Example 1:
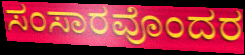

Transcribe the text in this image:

ಸಂಸಾರವೊಂದರ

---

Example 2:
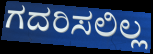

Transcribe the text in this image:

ಗದರಿಸಲಿಲ್ಲ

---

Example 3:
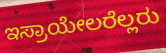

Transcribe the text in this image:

ಇಸ್ರಾಯೇಲರೆಲ್ಲರು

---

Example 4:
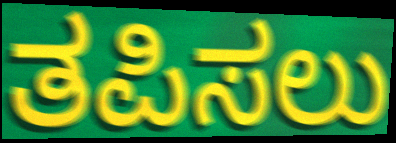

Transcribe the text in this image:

ತಪಿಸಲು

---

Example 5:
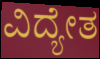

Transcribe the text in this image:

ವಿದ್ಯೇತ